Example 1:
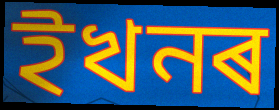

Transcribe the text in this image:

ইখনৰ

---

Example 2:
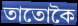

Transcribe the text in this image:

তাতোকৈ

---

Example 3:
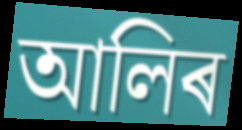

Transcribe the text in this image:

আলিৰ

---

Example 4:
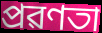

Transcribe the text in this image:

প্ৰৱণতা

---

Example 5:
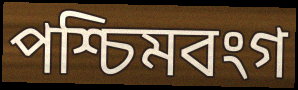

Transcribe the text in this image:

পশ্চিমবংগ